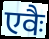
एवैः